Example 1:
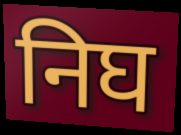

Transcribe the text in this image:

निघ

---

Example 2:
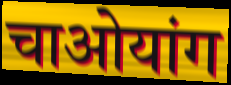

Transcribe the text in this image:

चाओयांग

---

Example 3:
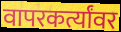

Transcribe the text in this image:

वापरकर्त्यांवर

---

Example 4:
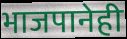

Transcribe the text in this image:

भाजपानेही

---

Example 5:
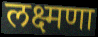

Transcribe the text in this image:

लक्ष्मणा